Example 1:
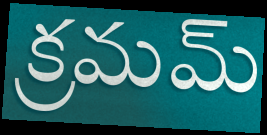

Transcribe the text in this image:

క్రమమ్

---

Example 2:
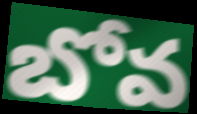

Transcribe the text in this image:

బోవ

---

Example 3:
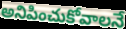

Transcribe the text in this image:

అనిపించుకోవాలనే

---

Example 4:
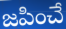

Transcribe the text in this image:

జపించే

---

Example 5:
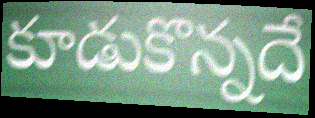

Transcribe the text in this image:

కూడుకొన్నదే